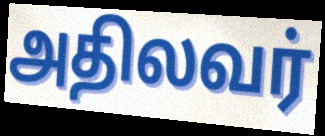
அதிலவர்